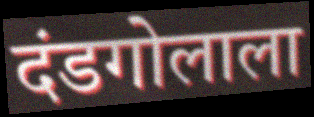
दंडगोलाला